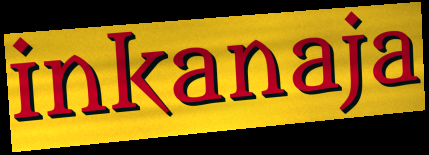
inkanaja